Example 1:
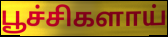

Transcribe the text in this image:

பூச்சிகளாய்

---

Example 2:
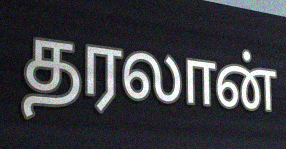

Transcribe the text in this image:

தரலான்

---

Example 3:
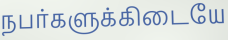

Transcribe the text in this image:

நபர்களுக்கிடையே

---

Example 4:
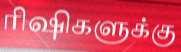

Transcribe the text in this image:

ரிஷிகளுக்கு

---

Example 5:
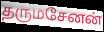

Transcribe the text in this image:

தருமசேனன்